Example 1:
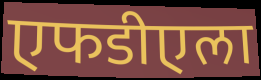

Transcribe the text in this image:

एफडीएला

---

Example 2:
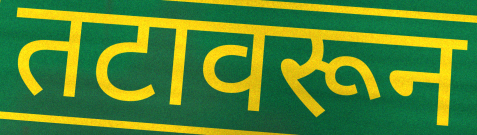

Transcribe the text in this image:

तटावरून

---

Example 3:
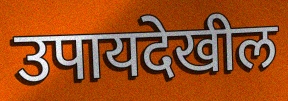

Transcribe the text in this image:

उपायदेखील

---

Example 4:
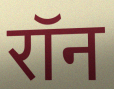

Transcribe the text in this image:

रॉन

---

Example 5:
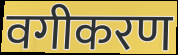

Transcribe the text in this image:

वगीकरण